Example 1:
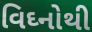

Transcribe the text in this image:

વિઘ્નોથી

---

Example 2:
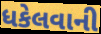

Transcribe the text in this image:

ધકેલવાની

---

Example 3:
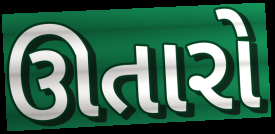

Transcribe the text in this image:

ઊતારો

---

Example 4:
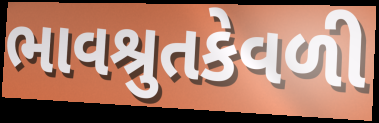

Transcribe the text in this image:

ભાવશ્રુતકેવળી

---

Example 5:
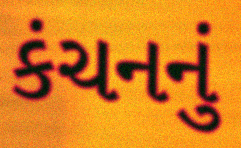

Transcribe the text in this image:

કંચનનું